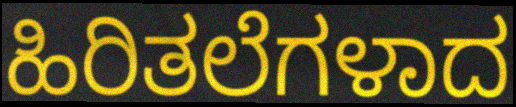
ಹಿರಿತಲೆಗಳಾದ